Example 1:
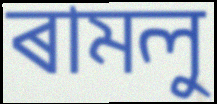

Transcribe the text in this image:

ৰামলু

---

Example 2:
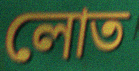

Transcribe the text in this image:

লোত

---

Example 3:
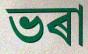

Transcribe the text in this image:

ভৰা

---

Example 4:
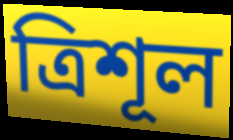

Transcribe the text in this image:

ত্ৰিশূল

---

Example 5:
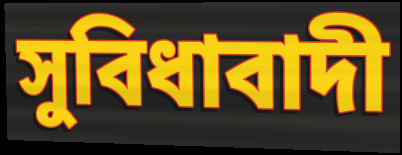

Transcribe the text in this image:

সুবিধাবাদী